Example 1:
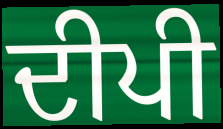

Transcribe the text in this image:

ਦੀਪੀ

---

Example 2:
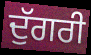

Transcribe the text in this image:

ਦੁੱਗਰੀ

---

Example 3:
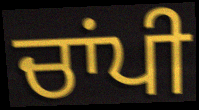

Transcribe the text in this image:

ਚਾਂਪੀ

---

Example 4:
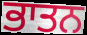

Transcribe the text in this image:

ਭਾਤਨ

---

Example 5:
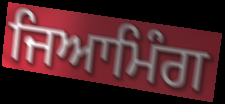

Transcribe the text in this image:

ਜਿਆਮਿੰਗ